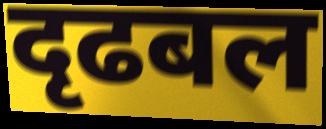
दृढबल